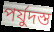
পর্যুদস্ত